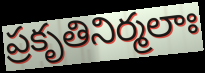
ప్రకృతినిర్మలాః